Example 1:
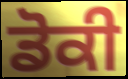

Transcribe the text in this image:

ਡੋਕੀ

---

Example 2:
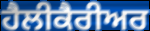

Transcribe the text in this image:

ਹੈਲੀਕੈਰੀਅਰ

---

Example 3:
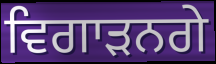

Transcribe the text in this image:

ਵਿਗਾੜਨਗੇ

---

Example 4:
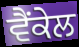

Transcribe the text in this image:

ਵੈਂਕੇਲ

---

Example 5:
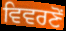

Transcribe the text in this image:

ਵਿਵਰਣੋਂ